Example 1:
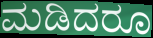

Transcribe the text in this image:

ಮಡಿದರೂ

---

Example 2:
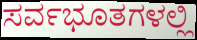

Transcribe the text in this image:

ಸರ್ವಭೂತಗಳಲ್ಲಿ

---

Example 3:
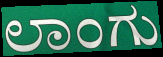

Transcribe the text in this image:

ಲಾಂಗು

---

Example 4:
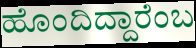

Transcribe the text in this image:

ಹೊಂದಿದ್ದಾರೆಂಬ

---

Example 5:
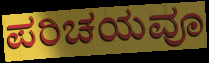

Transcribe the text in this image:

ಪರಿಚಯವೂ